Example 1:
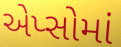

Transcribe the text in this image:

એપ્સોમાં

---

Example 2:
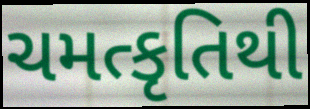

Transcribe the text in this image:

ચમત્કૃતિથી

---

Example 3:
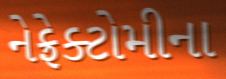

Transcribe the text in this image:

નેફ્રેક્ટોમીના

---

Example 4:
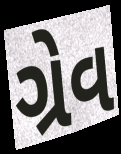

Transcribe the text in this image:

ગ્રેવ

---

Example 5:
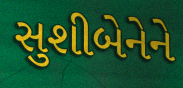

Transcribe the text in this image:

સુશીબેનેને